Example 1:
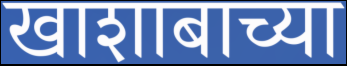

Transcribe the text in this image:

खाशाबाच्या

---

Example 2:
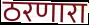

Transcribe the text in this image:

ठरणारा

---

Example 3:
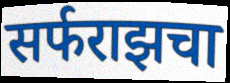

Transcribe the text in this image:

सर्फराझचा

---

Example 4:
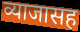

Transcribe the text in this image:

व्याजासह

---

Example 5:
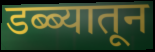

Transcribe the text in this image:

डब्ब्यातून